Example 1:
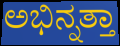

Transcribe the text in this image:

ಅಭಿನ್ನತ್ತಾ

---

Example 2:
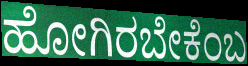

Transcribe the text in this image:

ಹೋಗಿರಬೇಕೆಂಬ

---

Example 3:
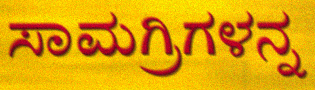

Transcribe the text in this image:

ಸಾಮಗ್ರಿಗಳನ್ನ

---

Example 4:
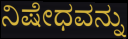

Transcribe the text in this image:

ನಿಷೇಧವನ್ನು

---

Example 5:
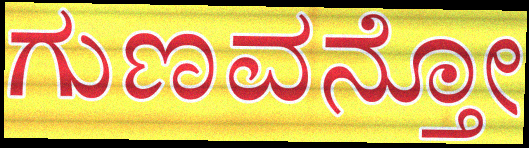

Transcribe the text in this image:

ಗುಣವನ್ತೋ